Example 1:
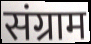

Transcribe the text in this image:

संग्राम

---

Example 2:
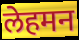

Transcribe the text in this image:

लेहमन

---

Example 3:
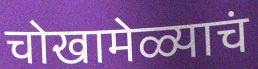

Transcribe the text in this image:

चोखामेळ्याचं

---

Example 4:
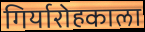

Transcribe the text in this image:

गिर्यारोहकाला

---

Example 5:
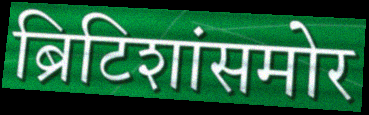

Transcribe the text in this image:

ब्रिटिशांसमोर